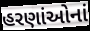
હરણાંઓનાં